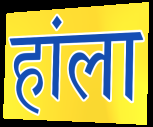
हांला